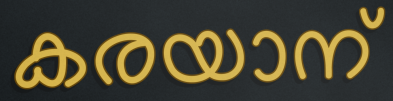
കരയാന്